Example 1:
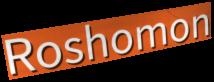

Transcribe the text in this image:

Roshomon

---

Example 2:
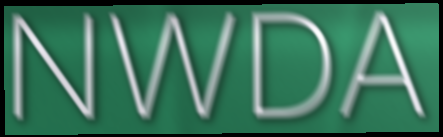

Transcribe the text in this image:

NWDA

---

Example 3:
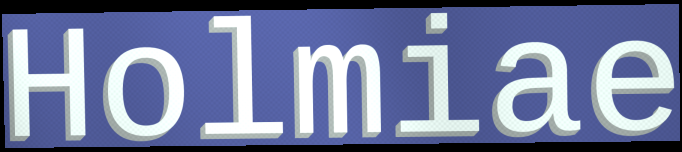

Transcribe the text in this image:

Holmiae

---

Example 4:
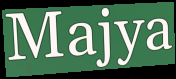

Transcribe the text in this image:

Majya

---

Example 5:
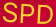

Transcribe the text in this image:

SPD